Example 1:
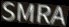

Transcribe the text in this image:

SMRA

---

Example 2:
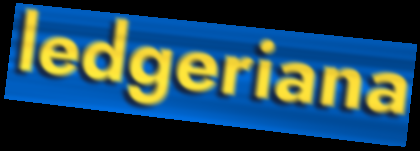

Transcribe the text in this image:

ledgeriana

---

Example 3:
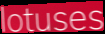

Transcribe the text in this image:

lotuses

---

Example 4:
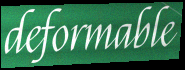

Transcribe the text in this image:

deformable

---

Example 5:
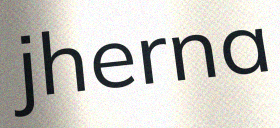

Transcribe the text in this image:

jherna